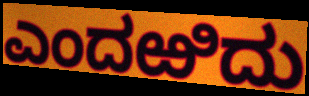
ಎಂದಱಿದು